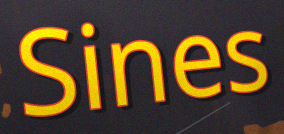
Sines